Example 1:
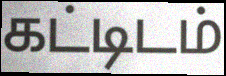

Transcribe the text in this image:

கட்டிடம்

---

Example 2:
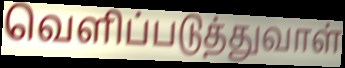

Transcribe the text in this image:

வெளிப்படுத்துவாள்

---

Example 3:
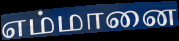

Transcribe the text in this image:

எம்மானை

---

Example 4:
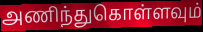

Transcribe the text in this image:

அணிந்துகொள்ளவும்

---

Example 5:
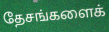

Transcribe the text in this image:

தேசங்களைக்